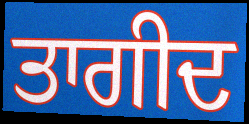
ਤਾਗੀਦ